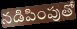
నడిపింపుతో